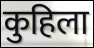
कुहिला